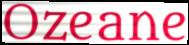
Ozeane